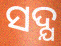
ସଦ୍ଯ